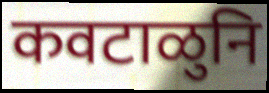
कवटाळुनि